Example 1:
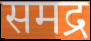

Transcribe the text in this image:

समद्र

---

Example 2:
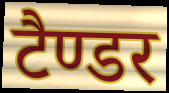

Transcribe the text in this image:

टैण्डर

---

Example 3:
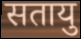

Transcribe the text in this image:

सतायु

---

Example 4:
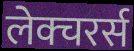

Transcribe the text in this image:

लेक्चरर्स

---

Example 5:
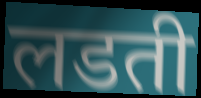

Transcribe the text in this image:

लडती